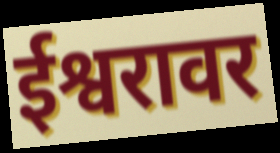
ईश्वरावर